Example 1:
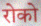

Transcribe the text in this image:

रोको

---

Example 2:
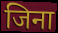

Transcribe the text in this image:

जिना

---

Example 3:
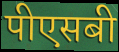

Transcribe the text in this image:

पीएसबी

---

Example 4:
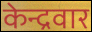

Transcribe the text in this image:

केन्‍द्रवार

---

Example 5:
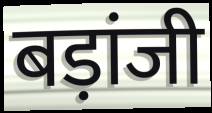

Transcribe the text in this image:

बड़ांजी